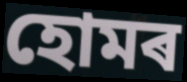
হোমৰ